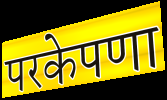
परकेपणा